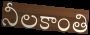
నీలకాంతి